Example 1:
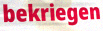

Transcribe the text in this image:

bekriegen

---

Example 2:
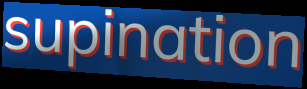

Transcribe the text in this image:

supination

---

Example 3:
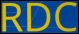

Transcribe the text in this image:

RDC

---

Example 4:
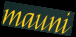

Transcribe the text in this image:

mauni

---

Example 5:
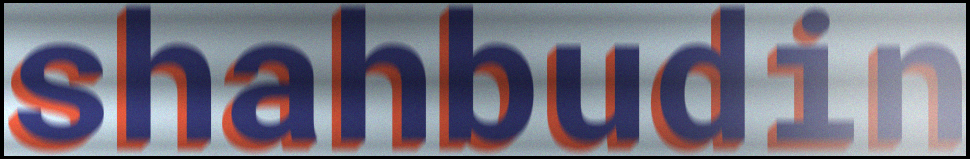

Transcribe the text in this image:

shahbudin